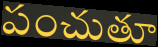
పంచుతూ